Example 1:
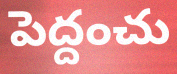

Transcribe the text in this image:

పెద్దంచు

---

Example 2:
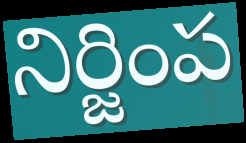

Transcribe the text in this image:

నిర్జింప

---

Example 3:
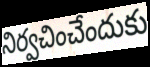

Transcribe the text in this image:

నిర్వచించేందుకు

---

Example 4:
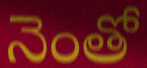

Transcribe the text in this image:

నెంతో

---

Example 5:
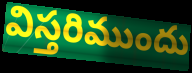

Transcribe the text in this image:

విస్తరిముందు